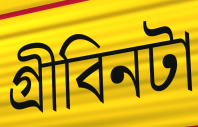
গ্রীবিনটা